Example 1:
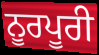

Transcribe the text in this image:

ਨੂਰਪੂਰੀ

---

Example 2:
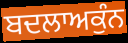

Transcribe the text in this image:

ਬਦਲਾਅਕੁੰਨ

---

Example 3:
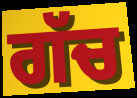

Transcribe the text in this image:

ਗੱਚ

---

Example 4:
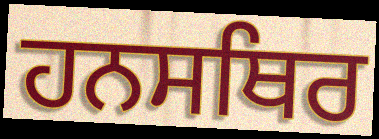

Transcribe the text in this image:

ਹਨਸਥਿਰ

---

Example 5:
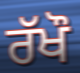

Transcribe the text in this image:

ਰੱਖੌ